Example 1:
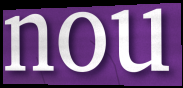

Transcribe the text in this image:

nou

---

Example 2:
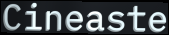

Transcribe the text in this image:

Cineaste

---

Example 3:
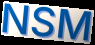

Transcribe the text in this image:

NSM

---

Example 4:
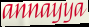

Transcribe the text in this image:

annayya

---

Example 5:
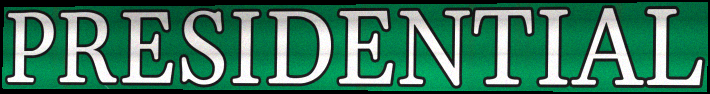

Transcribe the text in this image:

PRESIDENTIAL